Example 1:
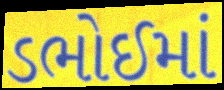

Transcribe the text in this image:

ડભોઈમાં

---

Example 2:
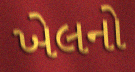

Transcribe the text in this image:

ખેલનો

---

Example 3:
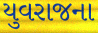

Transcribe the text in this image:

યુવરાજના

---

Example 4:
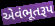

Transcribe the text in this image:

એવંભૂતરૂપ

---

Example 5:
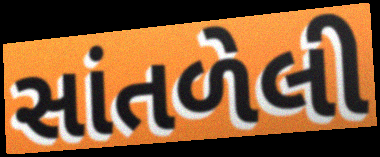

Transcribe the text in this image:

સાંતળેલી